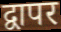
द्वापर